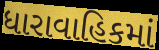
ધારાવાહિકમાં